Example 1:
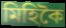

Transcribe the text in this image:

মিহিকৈ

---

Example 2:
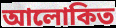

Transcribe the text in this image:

আলোকিত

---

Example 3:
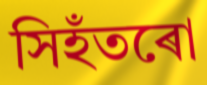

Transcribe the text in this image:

সিহঁতৰো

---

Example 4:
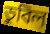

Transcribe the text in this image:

ডুবিল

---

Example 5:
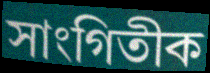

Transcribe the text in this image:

সাংগিতীক